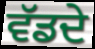
ਵੱਡਦੇ